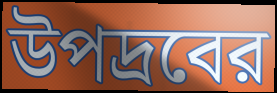
উপদ্রবের